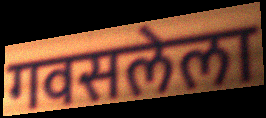
गवसलेला